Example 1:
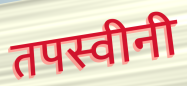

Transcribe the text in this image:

तपस्वीनी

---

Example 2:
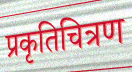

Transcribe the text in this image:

प्रकृतिचित्रण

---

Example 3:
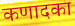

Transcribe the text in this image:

कणादका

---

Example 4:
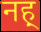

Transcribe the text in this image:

नह्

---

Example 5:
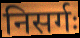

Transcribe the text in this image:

निसर्गः